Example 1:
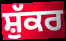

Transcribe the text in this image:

ਸ਼ੁੱਕਰ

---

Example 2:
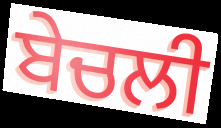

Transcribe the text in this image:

ਬੇਚਲੀ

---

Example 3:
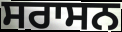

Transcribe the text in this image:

ਸਰਾਸਨ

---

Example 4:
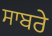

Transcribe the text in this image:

ਸਾਬਰੇ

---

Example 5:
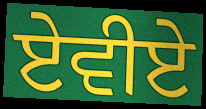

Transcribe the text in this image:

ਏਵੀਏ